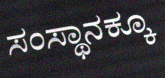
ಸಂಸ್ಥಾನಕ್ಕೂ